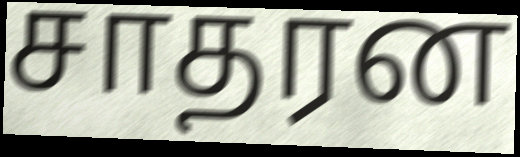
சாதரன